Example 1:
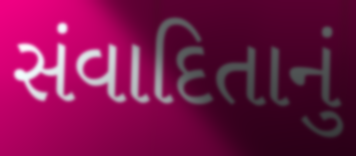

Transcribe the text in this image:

સંવાદિતાનું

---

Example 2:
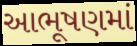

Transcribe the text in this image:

આભૂષણમાં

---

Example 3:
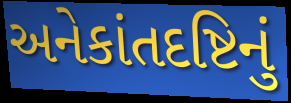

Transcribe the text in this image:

અનેકાંતદષ્ટિનું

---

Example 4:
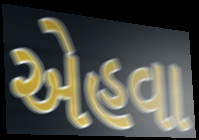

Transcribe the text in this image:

એહવા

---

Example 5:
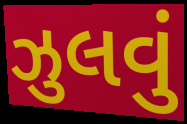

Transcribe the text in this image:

ઝુલવું